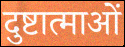
दुष्टात्माओं